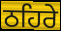
ਠਹਿਰੇ